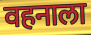
वहनाला